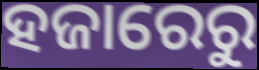
ହଜାରେରୁ